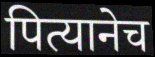
पित्यानेच